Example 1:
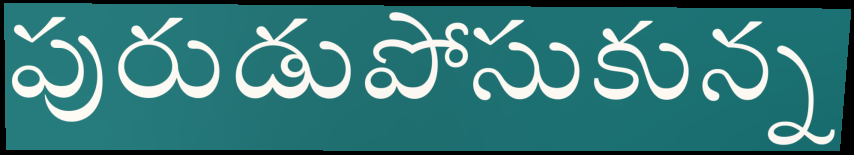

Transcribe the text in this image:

పురుడుపోసుకున్న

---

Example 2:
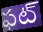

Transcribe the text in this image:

ఫట్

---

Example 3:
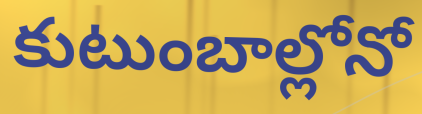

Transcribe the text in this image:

కుటుంబాల్లోనో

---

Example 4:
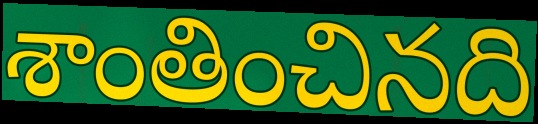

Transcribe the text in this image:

శాంతించినది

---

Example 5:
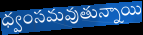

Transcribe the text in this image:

ధ్వంసమవుతున్నాయి